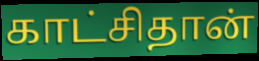
காட்சிதான்